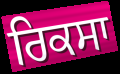
ਰਿਕਸਾ